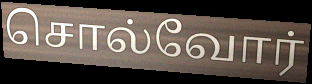
சொல்வோர்